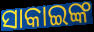
ସାକାଇଙ୍କ